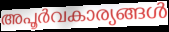
അപൂർവകാര്യങ്ങൾ